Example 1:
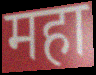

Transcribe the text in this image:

महा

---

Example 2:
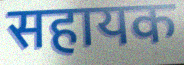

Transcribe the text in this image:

सहायक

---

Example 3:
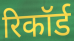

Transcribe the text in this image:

रिकॉर्ड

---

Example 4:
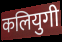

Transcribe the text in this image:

कलियुगी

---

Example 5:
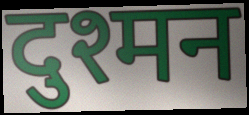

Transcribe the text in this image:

दुश्मन